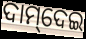
ଦାମ୍‌ଦେଇ